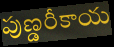
పుణ్డరీకాయ